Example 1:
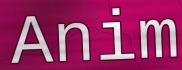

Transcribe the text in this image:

Anim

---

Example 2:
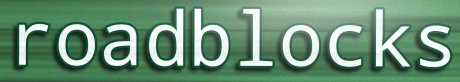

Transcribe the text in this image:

roadblocks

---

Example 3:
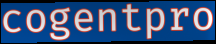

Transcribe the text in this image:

cogentpro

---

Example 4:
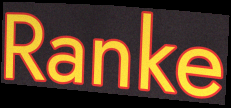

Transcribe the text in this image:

Ranke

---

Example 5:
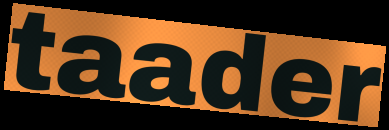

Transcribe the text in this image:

taader